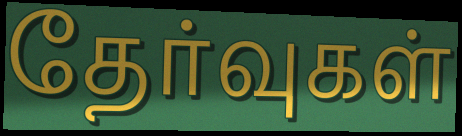
தேர்வுகள்